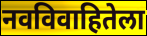
नवविवाहितेला